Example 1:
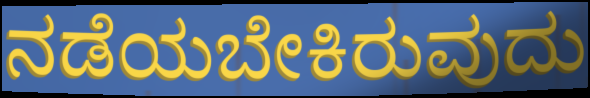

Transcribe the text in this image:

ನಡೆಯಬೇಕಿರುವುದು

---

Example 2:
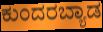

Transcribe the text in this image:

ಕುಂದರಬ್ಯಾಡ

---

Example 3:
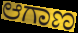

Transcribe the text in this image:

ಆಗಾಣ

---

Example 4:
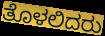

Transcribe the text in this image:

ತೊಳಲಿದರು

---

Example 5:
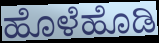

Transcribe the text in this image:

ಹೊಳೆಹೊಡಿ